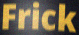
Frick